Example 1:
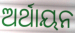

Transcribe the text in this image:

ଅର୍ଥାୟନ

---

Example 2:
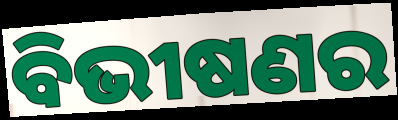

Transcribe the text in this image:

ବିଭୀଷଣର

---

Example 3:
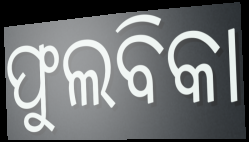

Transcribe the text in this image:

ଫୁଲବିକା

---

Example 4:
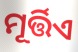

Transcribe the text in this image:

ମୂର୍ତ୍ତିଏ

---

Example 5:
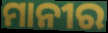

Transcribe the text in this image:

ମାନୀର